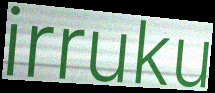
irruku